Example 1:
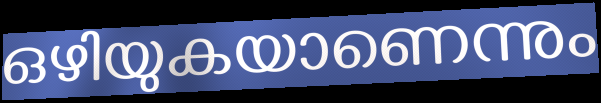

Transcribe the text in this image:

ഒഴിയുകയാണെന്നും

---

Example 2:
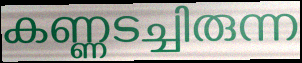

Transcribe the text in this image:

കണ്ണടച്ചിരുന്ന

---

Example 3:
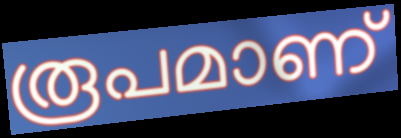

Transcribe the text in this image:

രൂപമാണ്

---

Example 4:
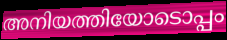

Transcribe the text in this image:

അനിയത്തിയോടൊപ്പം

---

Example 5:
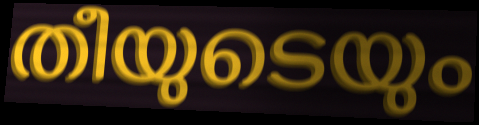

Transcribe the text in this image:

തീയുടെയും